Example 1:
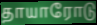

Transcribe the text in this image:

தாயாரோடு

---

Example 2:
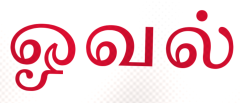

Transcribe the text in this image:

ஓவல்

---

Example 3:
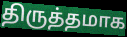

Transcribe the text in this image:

திருத்தமாக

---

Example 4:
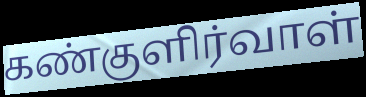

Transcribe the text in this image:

கண்குளிர்வாள்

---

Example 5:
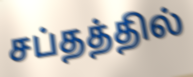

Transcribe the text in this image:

சப்தத்தில்